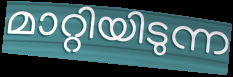
മാറ്റിയിടുന്ന